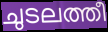
ചുടലത്തീ